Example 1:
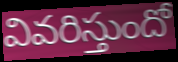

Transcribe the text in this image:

వివరిస్తుందో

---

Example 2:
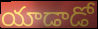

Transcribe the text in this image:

యాడాడో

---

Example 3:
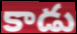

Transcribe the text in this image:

కాడు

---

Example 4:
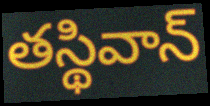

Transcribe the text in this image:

తస్థివాన్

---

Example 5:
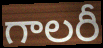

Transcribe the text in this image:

గాలరీ